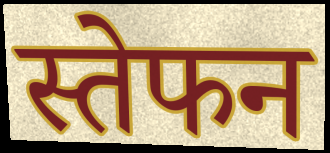
स्तेफन